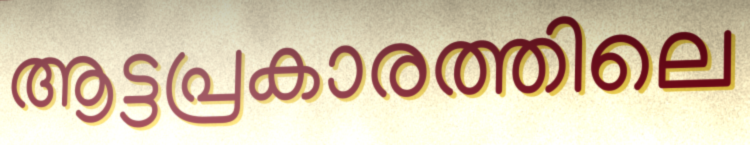
ആട്ടപ്രകാരത്തിലെ